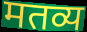
मतव्य